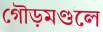
গৌড়মণ্ডলে